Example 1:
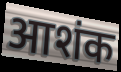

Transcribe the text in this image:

आशंक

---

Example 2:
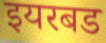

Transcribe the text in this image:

इयरबड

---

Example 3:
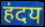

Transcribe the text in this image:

हंदय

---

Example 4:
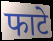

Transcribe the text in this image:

फाटे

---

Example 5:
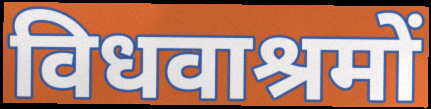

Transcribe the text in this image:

विधवाश्रमों